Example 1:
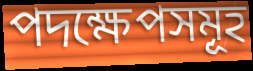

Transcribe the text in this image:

পদক্ষেপসমূহ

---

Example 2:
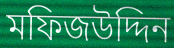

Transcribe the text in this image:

মফিজউদ্দিন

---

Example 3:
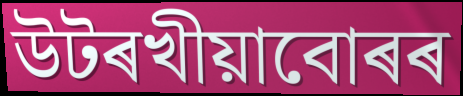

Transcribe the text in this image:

উটৰখীয়াবোৰৰ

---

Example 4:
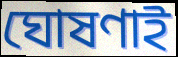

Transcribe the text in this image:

ঘোষণাই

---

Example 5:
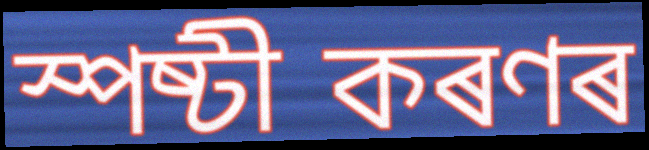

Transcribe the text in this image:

স্পষ্টীকৰণৰ